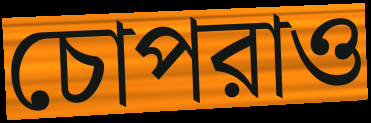
চোপরাও